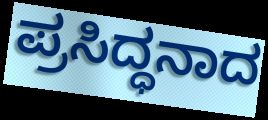
ಪ್ರಸಿದ್ಧನಾದ